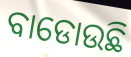
ବାଡୋଉଛି